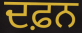
ਦਫ਼ਨ